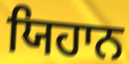
ਯਿਹਾਨ